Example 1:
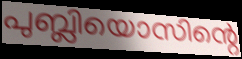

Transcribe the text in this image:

പുബ്ലിയൊസിന്റെ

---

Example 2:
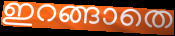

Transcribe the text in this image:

ഇറങ്ങാതെ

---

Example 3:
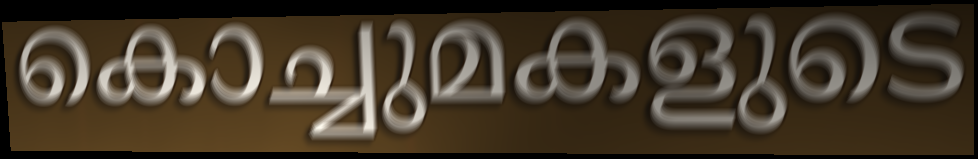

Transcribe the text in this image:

കൊച്ചുമകളുടെ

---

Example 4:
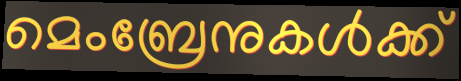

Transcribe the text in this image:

മെംബ്രേനുകൾക്ക്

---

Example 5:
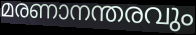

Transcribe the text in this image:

മരണാനന്തരവും